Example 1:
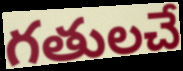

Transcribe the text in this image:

గతులచే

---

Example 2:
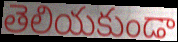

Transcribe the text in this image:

తెలియకుండా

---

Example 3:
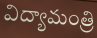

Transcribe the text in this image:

విద్యామంత్రి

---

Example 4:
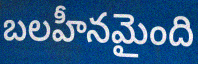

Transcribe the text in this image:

బలహీనమైంది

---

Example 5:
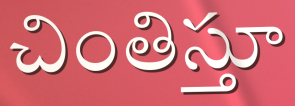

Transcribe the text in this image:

చింతిస్తూ